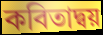
কবিতাদ্বয়